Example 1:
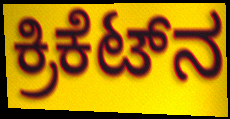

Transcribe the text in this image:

ಕ್ರಿಕೆಟ್‌ನ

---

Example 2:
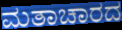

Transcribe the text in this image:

ಮತಾಚಾರದ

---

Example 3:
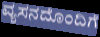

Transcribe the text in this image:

ವ್ಯಸನದೊಂದಿಗೆ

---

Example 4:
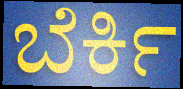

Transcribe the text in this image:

ಬೆರ್ಕಿ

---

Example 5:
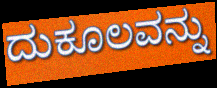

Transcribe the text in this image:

ದುಕೂಲವನ್ನು